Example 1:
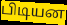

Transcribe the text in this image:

பிடியன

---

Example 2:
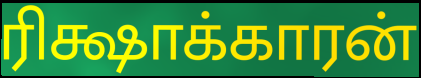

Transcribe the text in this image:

ரிக்ஷாக்காரன்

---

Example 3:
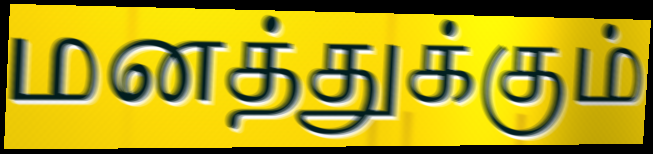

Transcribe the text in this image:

மனத்துக்கும்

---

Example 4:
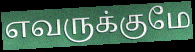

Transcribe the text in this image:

எவருக்குமே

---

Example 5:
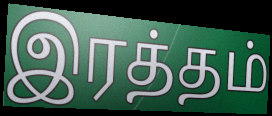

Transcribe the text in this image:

இரத்தம்